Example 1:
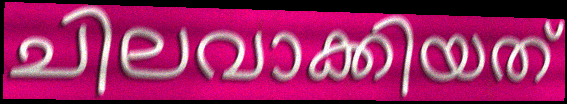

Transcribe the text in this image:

ചിലവാക്കിയത്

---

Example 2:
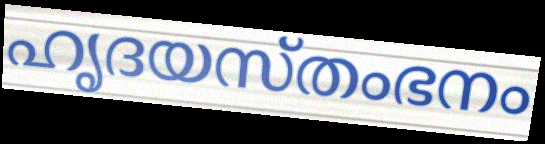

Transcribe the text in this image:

ഹൃദയസ്തംഭനം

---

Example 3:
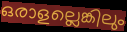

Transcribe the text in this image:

ഒരാളല്ലെങ്കിലും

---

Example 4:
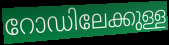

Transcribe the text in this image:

റോഡിലേക്കുള്ള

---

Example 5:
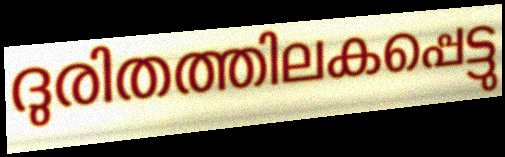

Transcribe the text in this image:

ദുരിതത്തിലകപ്പെട്ടു